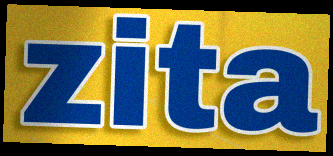
zita